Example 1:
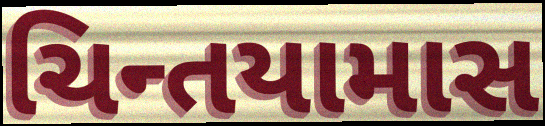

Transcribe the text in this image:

ચિન્તયામાસ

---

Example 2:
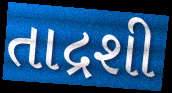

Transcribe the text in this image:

તાદ્રશી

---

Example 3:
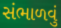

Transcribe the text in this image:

સંભાળવું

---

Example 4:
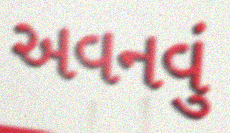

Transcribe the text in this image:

અવનવું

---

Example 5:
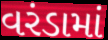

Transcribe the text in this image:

વરંડામાં